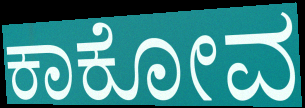
ಕಾಕೋವ